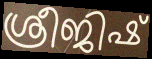
ശ്രീജിഷ്